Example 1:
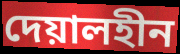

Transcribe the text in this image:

দেয়ালহীন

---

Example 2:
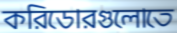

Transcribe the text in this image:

করিডোরগুলোতে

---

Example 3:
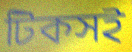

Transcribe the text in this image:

টিকসই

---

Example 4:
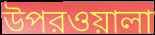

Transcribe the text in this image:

উপরওয়ালা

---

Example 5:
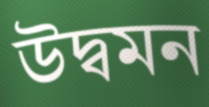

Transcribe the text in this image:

উদ্বমন